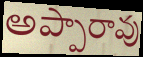
అప్పారావు